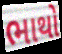
ભાથો